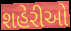
શહેરીઓ